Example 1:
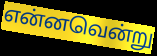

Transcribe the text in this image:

என்னவென்று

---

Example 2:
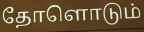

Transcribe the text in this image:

தோளொடும்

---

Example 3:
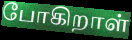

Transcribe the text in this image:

போகிறாள்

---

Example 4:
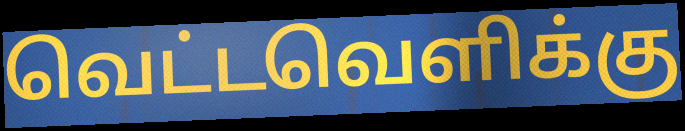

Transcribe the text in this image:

வெட்டவெளிக்கு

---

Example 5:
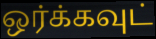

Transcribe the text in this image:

ஒர்க்கவுட்